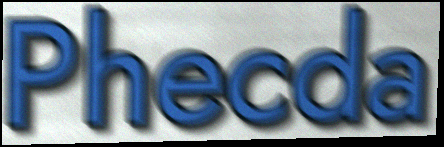
Phecda